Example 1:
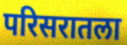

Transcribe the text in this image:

परिसरातला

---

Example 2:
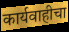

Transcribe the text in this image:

कार्यवाहीचा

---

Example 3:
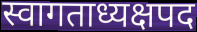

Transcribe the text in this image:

स्वागताध्यक्षपद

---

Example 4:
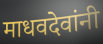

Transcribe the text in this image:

माधवदेवांनी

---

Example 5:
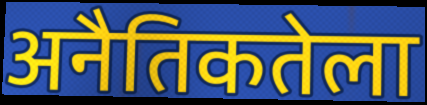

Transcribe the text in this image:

अनैतिकतेला